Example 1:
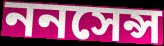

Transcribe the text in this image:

ননসেন্স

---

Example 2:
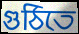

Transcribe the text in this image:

গুঠিতে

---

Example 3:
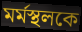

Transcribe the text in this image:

মর্মস্থলকে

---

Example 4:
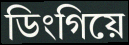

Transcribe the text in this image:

ডিংগিয়ে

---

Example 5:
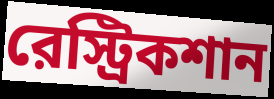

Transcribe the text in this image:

রেস্ট্রিকশান